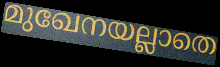
മുഖേനയല്ലാതെ